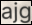
ajg